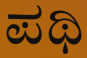
ಪಥಿ